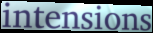
intensions